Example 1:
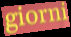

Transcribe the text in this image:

giorni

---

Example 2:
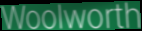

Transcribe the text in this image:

Woolworth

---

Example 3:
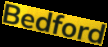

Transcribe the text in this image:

Bedford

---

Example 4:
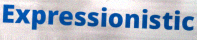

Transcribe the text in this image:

Expressionistic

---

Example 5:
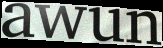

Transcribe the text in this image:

awun